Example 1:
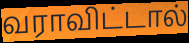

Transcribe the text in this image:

வராவிட்டால்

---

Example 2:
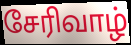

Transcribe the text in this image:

சேரிவாழ்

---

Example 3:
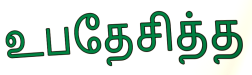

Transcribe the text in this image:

உபதேசித்த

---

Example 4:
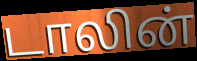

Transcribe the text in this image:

டாலின்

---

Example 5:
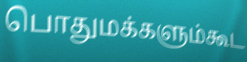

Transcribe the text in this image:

பொதுமக்களும்கூட